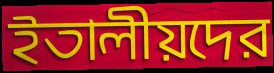
ইতালীয়দের